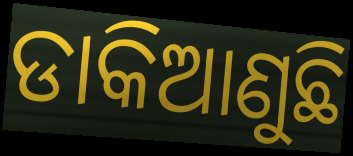
ଡାକିଆଣୁଛି